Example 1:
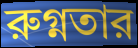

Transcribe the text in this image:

রুগ্নতার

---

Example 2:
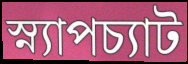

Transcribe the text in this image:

স্ন্যাপচ্যাট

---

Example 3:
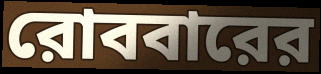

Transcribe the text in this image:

রোববারের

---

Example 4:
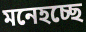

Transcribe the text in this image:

মনেহচ্ছে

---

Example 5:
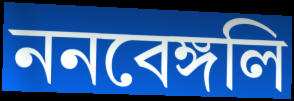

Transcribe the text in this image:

ননবেঙ্গলি